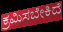
ಕ್ರಮಿಸಬೇಕಿದೆ